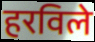
हरविले